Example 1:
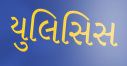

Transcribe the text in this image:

યુલિસિસ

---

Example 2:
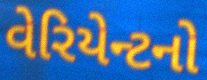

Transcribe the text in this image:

વેરિયેન્ટનો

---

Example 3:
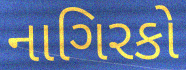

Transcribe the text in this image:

નાગિરકો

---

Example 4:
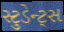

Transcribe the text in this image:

સ્ટુડેન્ટ્સ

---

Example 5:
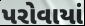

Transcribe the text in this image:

પરોવાયાં